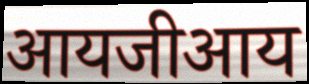
आयजीआय